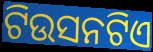
ଟିଉସନଟିଏ